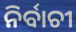
ନିର୍ବାଚୀ